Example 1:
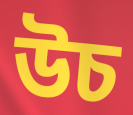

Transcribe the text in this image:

উচ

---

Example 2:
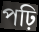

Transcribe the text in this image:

পঢ়ি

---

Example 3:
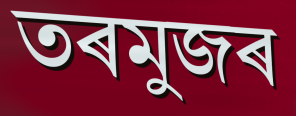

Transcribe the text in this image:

তৰমুজৰ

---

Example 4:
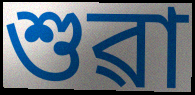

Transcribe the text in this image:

শুৱা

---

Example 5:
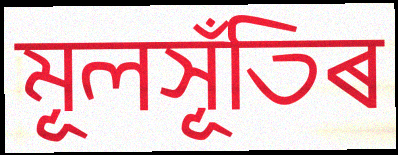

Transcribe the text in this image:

মূলসূঁতিৰ